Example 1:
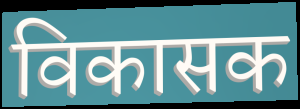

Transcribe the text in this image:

विकासक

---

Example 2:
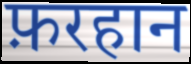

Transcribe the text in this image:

फ़रहान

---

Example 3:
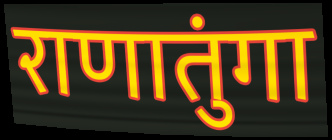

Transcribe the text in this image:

राणातुंगा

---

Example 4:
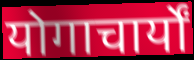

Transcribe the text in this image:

योगाचार्यों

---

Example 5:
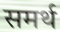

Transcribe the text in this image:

समर्थ